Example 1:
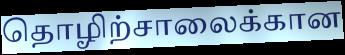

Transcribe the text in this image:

தொழிற்சாலைக்கான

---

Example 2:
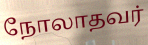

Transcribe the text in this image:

நோலாதவர்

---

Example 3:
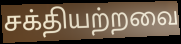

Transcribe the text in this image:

சக்தியற்றவை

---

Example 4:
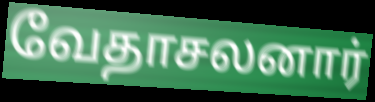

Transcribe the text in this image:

வேதாசலனார்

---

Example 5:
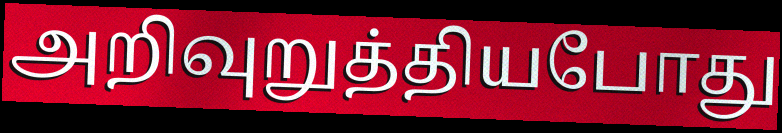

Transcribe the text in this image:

அறிவுறுத்தியபோது